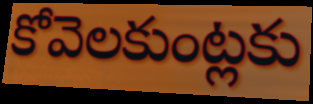
కోవెలకుంట్లకు